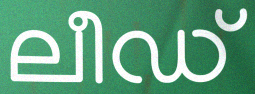
ലീഡ്